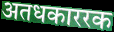
अतधकाररक